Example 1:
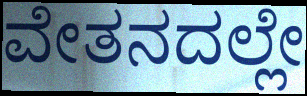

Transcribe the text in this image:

ವೇತನದಲ್ಲೇ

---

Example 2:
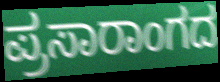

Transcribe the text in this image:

ಪ್ರಸಾರಾಂಗದ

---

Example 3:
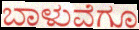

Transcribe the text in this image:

ಬಾಳುವೆಗೂ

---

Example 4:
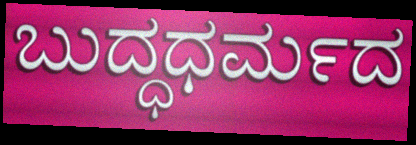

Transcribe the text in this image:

ಬುದ್ಧಧರ್ಮದ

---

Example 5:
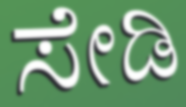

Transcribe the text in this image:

ಸೇಡಿ